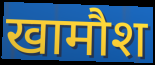
खामौश